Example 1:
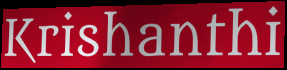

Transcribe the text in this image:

Krishanthi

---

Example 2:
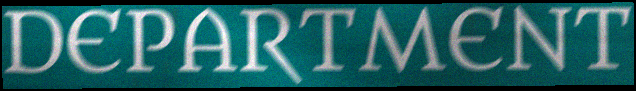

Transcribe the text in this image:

DEPARTMENT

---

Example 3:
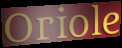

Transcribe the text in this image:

Oriole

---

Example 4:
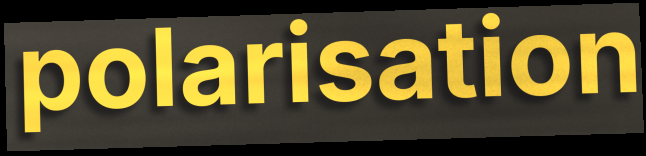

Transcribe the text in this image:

polarisation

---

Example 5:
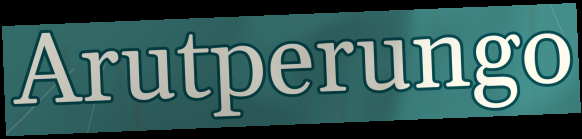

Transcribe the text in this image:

Arutperungo